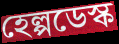
হেল্পডেস্ক